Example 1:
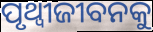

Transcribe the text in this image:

ପୃଥ୍ୱୀଜୀବନକୁ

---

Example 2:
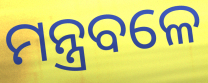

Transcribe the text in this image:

ମନ୍ତ୍ରବଳେ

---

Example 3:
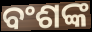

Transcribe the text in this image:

ବଂଶଙ୍କ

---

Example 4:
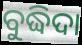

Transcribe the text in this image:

ବୁଦ୍ଧିଦା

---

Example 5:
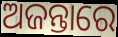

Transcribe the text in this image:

ଅଜନ୍ତାରେ